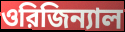
ওরিজিন্যাল